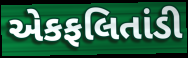
એકફલિતાંડી